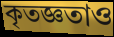
কৃতজ্ঞতাও